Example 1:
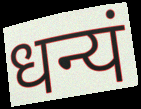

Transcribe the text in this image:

धन्यं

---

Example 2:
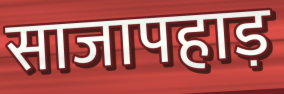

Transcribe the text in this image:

साजापहाड़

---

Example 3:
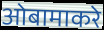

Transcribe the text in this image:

ओबामाकरे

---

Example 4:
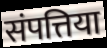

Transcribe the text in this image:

संपत्तिया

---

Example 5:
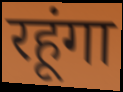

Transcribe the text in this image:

रहूंगा